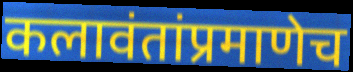
कलावंतांप्रमाणेच